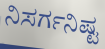
ನಿಸರ್ಗನಿಷ್ಟ